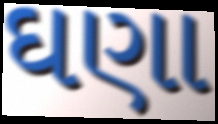
ઘણા